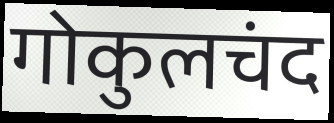
गोकुलचंद